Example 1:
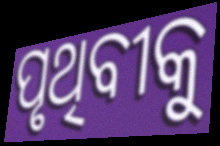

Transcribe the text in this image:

ପୃଥିବୀକୁ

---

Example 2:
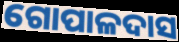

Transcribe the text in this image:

ଗୋପାଳଦାସ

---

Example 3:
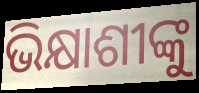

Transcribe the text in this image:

ଭିକ୍ଷାଶୀଙ୍କୁ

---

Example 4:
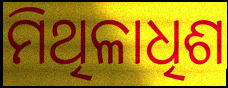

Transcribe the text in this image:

ମିଥିଳାଧିଶ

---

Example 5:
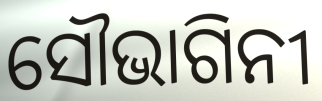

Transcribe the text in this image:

ସୌଭାଗିନୀ